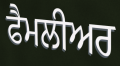
ਫੈਮਲੀਅਰ